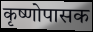
कृष्णोपासक